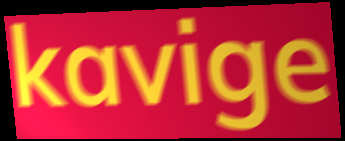
kavige